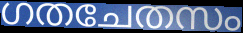
ഗതചേതസം